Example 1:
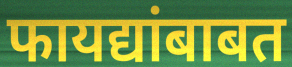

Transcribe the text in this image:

फायद्यांबाबत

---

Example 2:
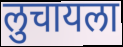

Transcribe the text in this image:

लुचायला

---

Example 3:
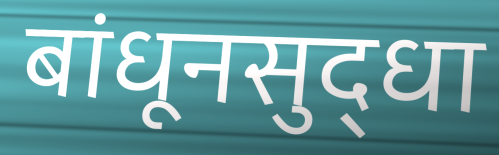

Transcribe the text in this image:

बांधूनसुद्धा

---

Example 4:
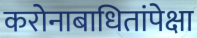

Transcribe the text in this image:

करोनाबाधितांपेक्षा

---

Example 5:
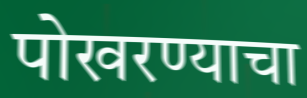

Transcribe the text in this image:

पोखरण्याचा